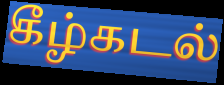
கீழ்கடல்